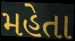
મહેતા